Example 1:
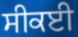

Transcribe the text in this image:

ਸੀਕਈ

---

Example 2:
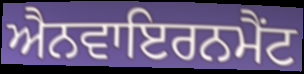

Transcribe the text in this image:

ਐਨਵਾਇਰਨਮੈਂਟ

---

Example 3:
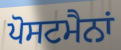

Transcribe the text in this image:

ਪੋਸਟਮੈਨਾਂ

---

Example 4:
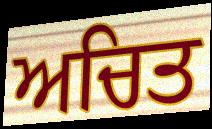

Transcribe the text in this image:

ਅਚਿਤ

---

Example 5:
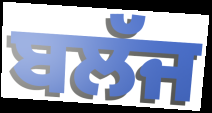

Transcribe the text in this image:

ਬਲੱਜ